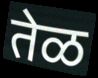
तेळ